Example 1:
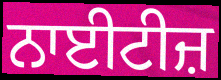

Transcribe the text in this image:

ਨਾਈਟੀਜ਼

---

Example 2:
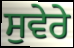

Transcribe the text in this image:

ਸੁਵੇਰੇ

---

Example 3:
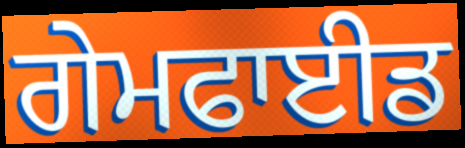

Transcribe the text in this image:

ਗੇਮਫਾਈਡ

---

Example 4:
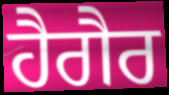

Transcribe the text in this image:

ਹੈਗੈਰ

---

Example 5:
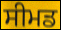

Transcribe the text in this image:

ਸੀਮਡ